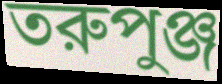
তরুপুঞ্জ